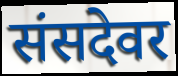
संसदेवर